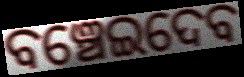
ବଞ୍ଚେଇଦେବ